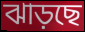
ঝাড়ছে